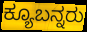
ಕ್ಯೂಬನ್ನರು